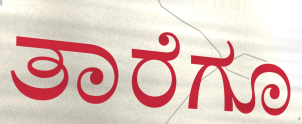
ತಾರೆಗೂ